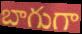
బాగుగా